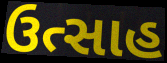
ઉત્સાહ